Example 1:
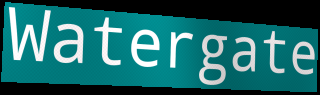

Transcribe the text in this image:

Watergate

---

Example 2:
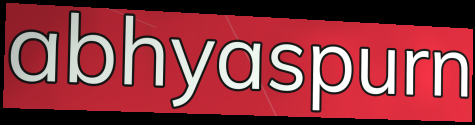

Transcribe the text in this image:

abhyaspurn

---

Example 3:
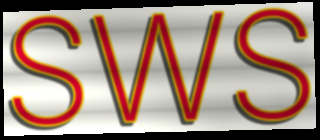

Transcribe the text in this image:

SWS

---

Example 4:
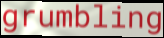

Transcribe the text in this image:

grumbling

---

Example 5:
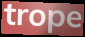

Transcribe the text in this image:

trope